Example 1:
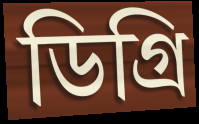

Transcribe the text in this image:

ডিগ্ৰি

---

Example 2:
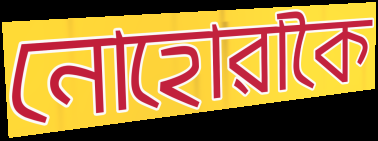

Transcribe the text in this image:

নোহোৱাকৈ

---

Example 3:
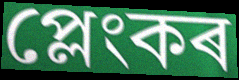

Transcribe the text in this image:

প্লেংকৰ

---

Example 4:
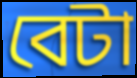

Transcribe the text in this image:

বেটা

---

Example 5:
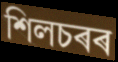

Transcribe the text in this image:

শিলচৰৰ